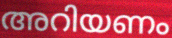
അറിയണം